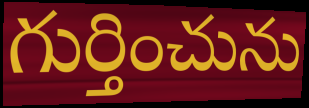
గుర్తించును